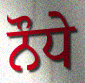
ਨੌਧੇ